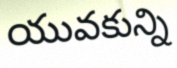
యువకున్ని